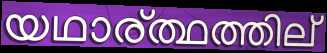
യഥാര്ത്ഥത്തില്